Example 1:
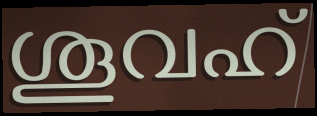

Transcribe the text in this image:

ശൂവഹ്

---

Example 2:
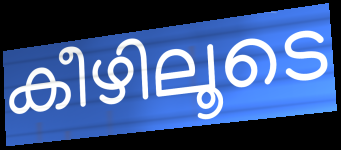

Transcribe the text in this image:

കീഴിലൂടെ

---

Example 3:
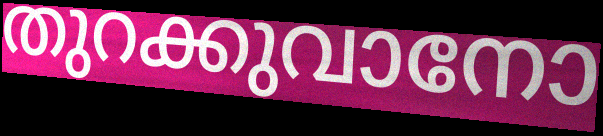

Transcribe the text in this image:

തുറക്കുവാനോ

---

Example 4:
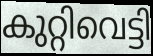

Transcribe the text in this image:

കുറ്റിവെട്ടി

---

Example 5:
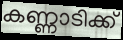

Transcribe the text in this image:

കണ്ണാടിക്ക്